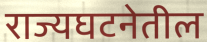
राज्यघटनेतील